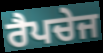
ਰੈਪਚੇਜ